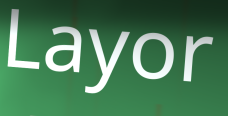
Layor